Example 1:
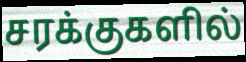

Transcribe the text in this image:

சரக்குகளில்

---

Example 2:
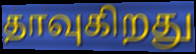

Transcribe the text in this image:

தாவுகிறது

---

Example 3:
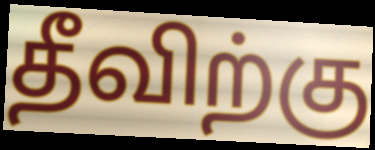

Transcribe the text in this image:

தீவிற்கு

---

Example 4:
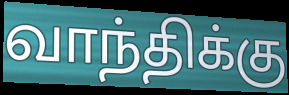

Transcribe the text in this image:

வாந்திக்கு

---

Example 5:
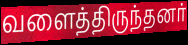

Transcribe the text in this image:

வளைத்திருந்தனர்